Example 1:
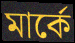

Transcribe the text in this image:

মার্কে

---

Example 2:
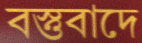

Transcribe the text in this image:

বস্তুবাদে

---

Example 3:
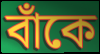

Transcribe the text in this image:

বাঁকে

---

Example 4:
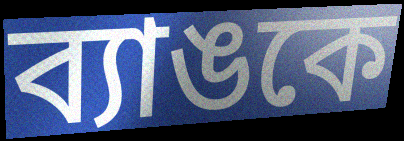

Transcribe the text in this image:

ব্যাঙকে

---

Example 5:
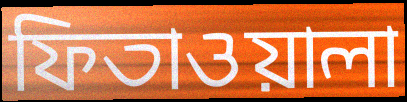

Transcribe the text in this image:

ফিতাওয়ালা